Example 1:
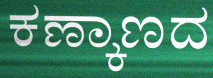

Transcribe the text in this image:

ಕಣ್ಕಾಣದ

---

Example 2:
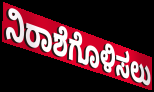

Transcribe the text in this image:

ನಿರಾಶೆಗೊಳಿಸಲು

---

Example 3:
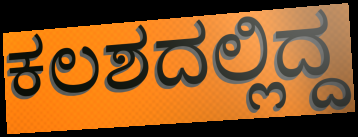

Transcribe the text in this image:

ಕಲಶದಲ್ಲಿದ್ದ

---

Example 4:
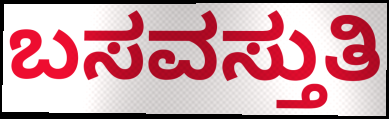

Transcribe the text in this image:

ಬಸವಸ್ತುತಿ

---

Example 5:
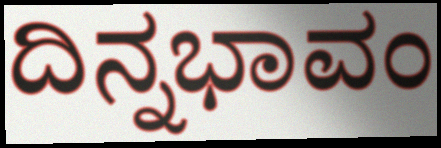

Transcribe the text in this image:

ದಿನ್ನಭಾವಂ